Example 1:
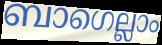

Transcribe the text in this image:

ബാഗെല്ലാം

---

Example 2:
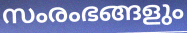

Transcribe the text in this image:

സംരംഭങ്ങളും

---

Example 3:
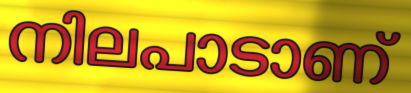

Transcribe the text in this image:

നിലപാടാണ്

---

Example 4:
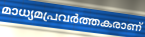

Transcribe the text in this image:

മാധ്യമപ്രവർത്തകരാണ്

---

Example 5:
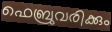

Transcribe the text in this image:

ഫെബ്രുവരിക്കും